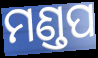
ମଣ୍ଡପ